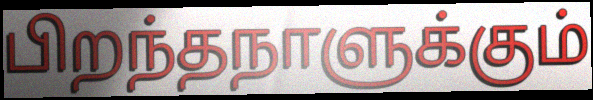
பிறந்தநாளுக்கும்